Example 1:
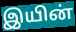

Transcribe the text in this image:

இயின்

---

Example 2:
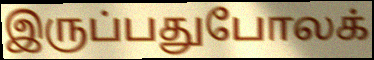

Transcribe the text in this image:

இருப்பதுபோலக்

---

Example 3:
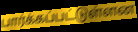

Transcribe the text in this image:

பார்க்கப்பட்டுள்ளன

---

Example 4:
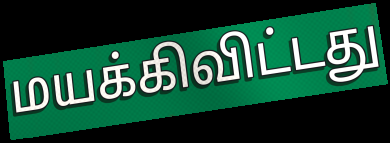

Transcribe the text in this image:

மயக்கிவிட்டது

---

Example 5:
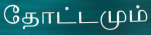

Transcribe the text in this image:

தோட்டமும்